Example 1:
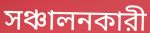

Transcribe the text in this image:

সঞ্চালনকারী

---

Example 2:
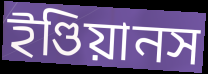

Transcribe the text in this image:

ইণ্ডিয়ানস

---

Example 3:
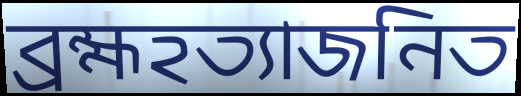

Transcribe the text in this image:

ব্রহ্মহত্যাজনিত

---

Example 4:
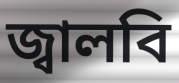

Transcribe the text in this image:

জ্বালবি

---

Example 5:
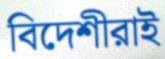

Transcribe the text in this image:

বিদেশীরাই